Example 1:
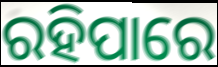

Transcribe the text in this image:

ରହିପାରେ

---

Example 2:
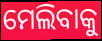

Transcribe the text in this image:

ମେଲିବାକୁ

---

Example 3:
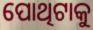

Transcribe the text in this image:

ପୋଥିଟାକୁ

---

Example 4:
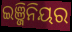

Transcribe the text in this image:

ଇଞ୍ଜିନିୟର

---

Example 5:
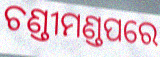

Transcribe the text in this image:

ଚଣ୍ଡୀମଣ୍ଡପରେ